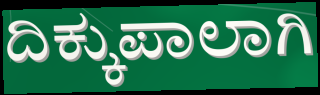
ದಿಕ್ಕುಪಾಲಾಗಿ